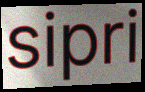
sipri